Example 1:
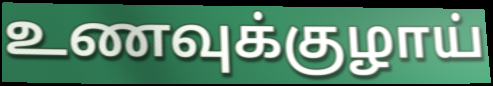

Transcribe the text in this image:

உணவுக்குழாய்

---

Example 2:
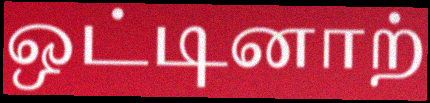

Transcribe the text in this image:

ஒட்டினாற்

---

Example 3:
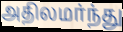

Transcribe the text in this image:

அதிலமர்ந்து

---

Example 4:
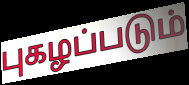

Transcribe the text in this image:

புகழப்படும்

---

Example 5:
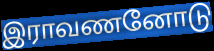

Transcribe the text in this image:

இராவணனோடு